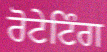
ਰੋਟੇਟਿੰਗ